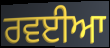
ਰਵਈਆ